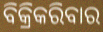
ବିକ୍ରିକରିବାର